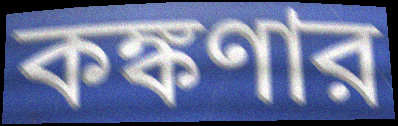
কঙ্কণার